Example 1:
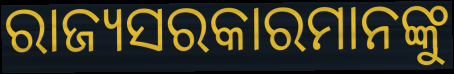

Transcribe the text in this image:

ରାଜ୍ୟସରକାରମାନଙ୍କୁ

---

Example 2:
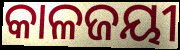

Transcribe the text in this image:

କାଳଜୟୀ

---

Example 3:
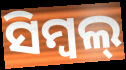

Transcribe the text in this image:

ସିମ୍ବଲ୍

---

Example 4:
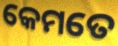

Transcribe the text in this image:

କେମତେ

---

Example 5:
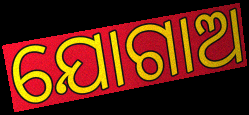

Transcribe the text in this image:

ଯୋଗାଅ